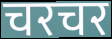
चरचर